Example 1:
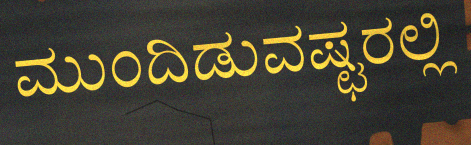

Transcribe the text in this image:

ಮುಂದಿಡುವಷ್ಟರಲ್ಲಿ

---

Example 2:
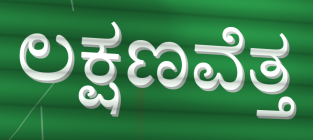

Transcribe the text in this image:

ಲಕ್ಷಣವೆತ್ತ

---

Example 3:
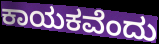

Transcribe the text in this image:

ಕಾಯಕವೆಂದು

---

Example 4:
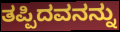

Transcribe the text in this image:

ತಪ್ಪಿದವನನ್ನು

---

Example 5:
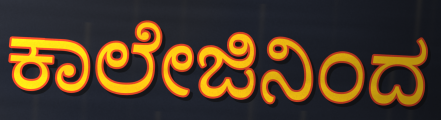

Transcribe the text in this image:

ಕಾಲೇಜಿನಿಂದ